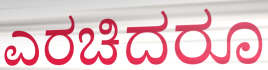
ಎರಚಿದರೂ